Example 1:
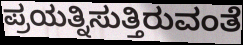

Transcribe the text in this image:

ಪ್ರಯತ್ನಿಸುತ್ತಿರುವಂತೆ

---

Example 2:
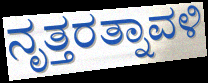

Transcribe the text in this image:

ನೃತ್ತರತ್ನಾವಳಿ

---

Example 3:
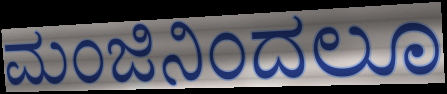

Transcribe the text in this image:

ಮಂಜಿನಿಂದಲೂ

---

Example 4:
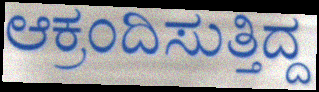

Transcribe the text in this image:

ಆಕ್ರಂದಿಸುತ್ತಿದ್ದ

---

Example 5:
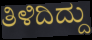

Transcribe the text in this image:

ತಿಳಿದಿದ್ದು